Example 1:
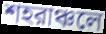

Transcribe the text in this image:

শহরাঞ্চলে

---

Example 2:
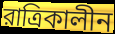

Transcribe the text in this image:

রাত্রিকালীন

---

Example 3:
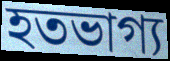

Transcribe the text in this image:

হতভাগ্য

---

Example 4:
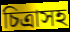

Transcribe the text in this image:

চিত্রাসহ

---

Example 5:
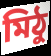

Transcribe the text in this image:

মিঠু